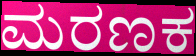
ಮರಣಕ